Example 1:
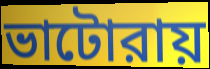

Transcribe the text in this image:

ভাটোরায়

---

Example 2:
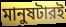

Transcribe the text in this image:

মানুষটারই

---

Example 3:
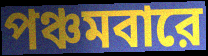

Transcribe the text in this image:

পঞ্চমবারে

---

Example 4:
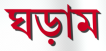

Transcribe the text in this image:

ঘড়াম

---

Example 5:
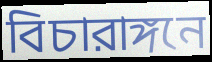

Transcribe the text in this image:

বিচারাঙ্গনে